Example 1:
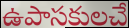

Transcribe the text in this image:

ఉపాసకులచే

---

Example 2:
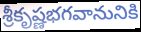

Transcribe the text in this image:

శ్రీకృష్ణభగవానునికి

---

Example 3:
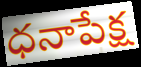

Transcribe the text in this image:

ధనాపేక్ష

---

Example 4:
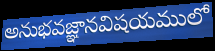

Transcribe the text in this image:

అనుభవజ్ఞానవిషయములో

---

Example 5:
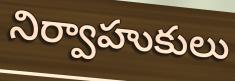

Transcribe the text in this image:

నిర్వాహుకులు